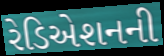
રેડિએશનની